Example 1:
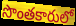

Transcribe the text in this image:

సొంతకారులో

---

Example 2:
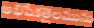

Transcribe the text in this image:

అభిషేకతైలమును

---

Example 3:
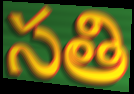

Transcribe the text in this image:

సతి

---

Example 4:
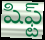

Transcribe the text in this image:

షిఫ్ట్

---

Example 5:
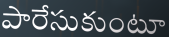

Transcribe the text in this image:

పారేసుకుంటూ